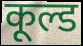
कूल्ड